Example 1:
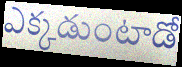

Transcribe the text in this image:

ఎక్కడుంటాడో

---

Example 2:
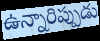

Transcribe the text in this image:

ఉన్నారిప్పుడు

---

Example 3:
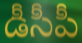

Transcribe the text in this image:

డీసీపీ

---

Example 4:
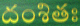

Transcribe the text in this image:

దంశితః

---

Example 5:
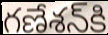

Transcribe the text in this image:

గణేశన్‍కి